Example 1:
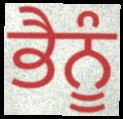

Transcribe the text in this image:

ਭੈਨੂੰ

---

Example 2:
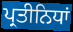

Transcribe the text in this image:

ਪ੍ਰਤੀਨਿਧਾਂ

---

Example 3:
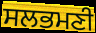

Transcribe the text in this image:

ਸਲਭਮਣੀ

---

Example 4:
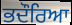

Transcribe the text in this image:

ਭਦੌਰਿਆ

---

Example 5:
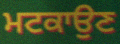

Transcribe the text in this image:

ਮਟਕਾਉਣ